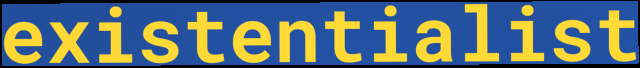
existentialist